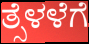
ತ್ಸೆಳಳೆಗೆ